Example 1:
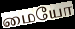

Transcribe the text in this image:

மையோ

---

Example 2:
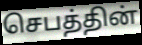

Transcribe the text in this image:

செபத்தின்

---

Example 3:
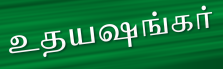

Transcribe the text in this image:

உதயஷங்கர்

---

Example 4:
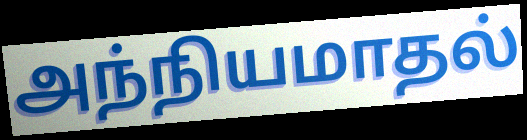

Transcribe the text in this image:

அந்நியமாதல்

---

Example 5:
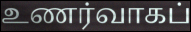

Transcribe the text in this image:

உணர்வாகப்